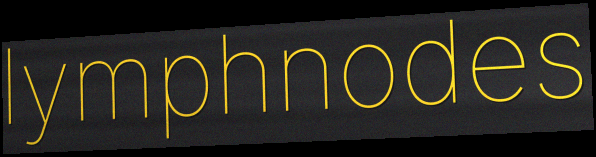
lymphnodes